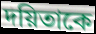
দয়িতাকে